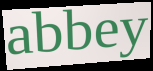
abbey